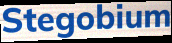
Stegobium